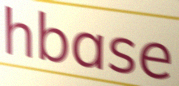
hbase